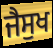
ਜੈਸੁਖ